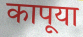
कापूया